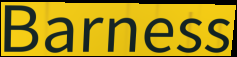
Barness